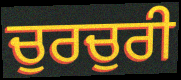
ਚੁਰਚੁਰੀ